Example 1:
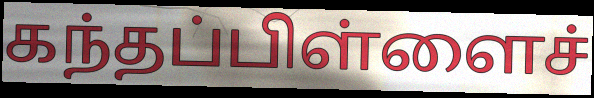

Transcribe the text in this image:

கந்தப்பிள்ளைச்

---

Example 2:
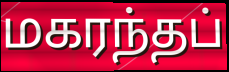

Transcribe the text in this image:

மகரந்தப்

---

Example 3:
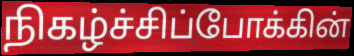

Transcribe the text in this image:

நிகழ்ச்சிப்போக்கின்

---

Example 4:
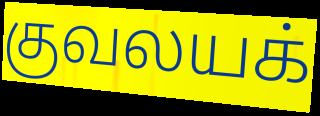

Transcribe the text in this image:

குவலயக்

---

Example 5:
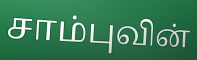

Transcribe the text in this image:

சாம்புவின்